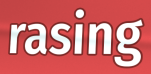
rasing